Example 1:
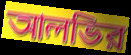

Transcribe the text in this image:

আলভির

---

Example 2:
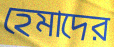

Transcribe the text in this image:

হেমাদের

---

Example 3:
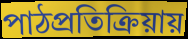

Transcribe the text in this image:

পাঠপ্রতিক্রিয়ায়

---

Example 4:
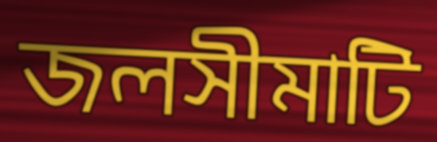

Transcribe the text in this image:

জলসীমাটি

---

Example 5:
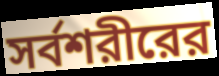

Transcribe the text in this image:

সর্বশরীরের